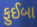
ફુઈબા